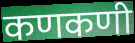
कणकणी